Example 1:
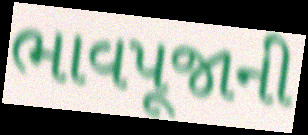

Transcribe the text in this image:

ભાવપૂજાની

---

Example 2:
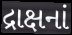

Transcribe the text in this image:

દ્રાક્ષનાં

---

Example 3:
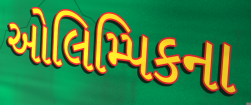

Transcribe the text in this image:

ઓલિમ્પિકના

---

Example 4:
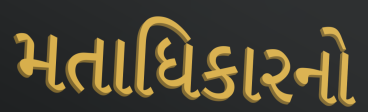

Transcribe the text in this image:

મતાધિકારનો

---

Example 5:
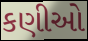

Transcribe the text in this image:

કણીઓ